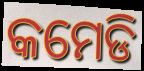
କମେଡି